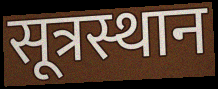
सूत्रस्थान